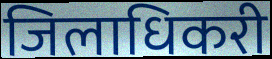
जिलाधिकरी